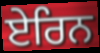
ਏਰਿਨ